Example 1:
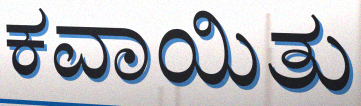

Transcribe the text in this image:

ಕವಾಯಿತು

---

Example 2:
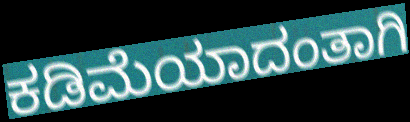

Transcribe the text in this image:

ಕಡಿಮೆಯಾದಂತಾಗಿ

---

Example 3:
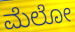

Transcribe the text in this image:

ಮೆಲೋ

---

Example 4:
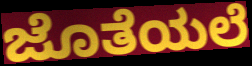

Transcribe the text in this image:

ಜೊತೆಯಲೆ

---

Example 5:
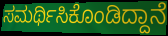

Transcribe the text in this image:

ಸಮರ್ಥಿಸಿಕೊಂಡಿದ್ದಾನೆ